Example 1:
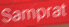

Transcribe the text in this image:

Samprat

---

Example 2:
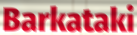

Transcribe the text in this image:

Barkataki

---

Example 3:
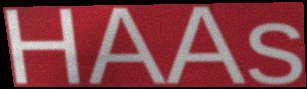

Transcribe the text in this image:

HAAs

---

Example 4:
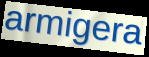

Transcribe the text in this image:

armigera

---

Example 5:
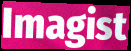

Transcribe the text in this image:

Imagist